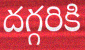
దగ్గరికి